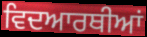
ਵਿਦਆਰਥੀਆਂ